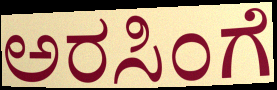
ಅರಸಿಂಗೆ